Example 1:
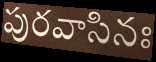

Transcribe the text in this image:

పురవాసినః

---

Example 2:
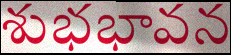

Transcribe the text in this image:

శుభభావన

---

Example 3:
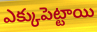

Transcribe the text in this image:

ఎక్కుపెట్టాయి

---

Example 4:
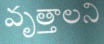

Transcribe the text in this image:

వృత్తాలని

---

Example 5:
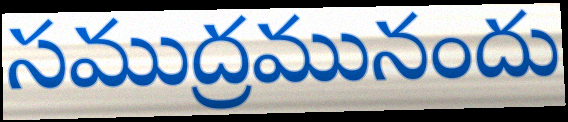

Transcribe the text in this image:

సముద్రమునందు